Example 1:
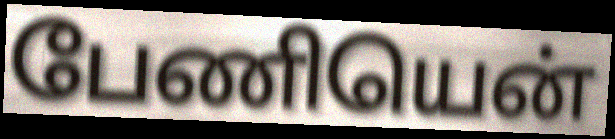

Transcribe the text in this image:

பேணியென்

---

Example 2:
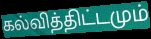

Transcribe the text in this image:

கல்வித்திட்டமும்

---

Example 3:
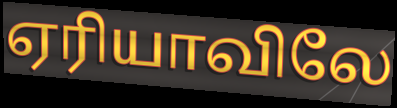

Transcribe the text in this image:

ஏரியாவிலே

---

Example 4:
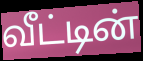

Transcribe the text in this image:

வீட்டின்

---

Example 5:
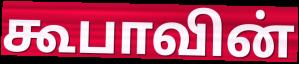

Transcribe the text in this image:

கூபாவின்